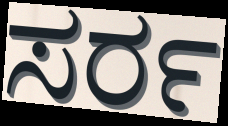
ಸರ್ರ